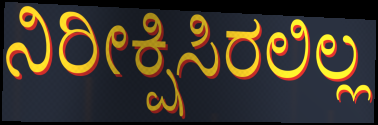
ನಿರೀಕ್ಷಿಸಿರಲಿಲ್ಲ